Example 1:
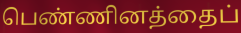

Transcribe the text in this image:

பெண்ணினத்தைப்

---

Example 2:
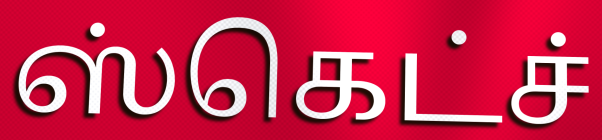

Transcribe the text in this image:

ஸ்கெட்ச்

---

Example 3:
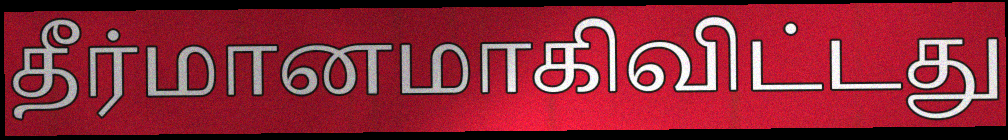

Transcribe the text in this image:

தீர்மானமாகிவிட்டது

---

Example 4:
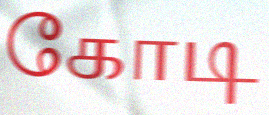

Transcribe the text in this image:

கோடி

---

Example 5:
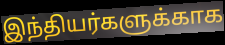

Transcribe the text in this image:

இந்தியர்களுக்காக